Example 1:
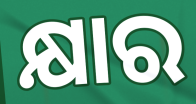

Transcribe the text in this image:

କ୍ଷାର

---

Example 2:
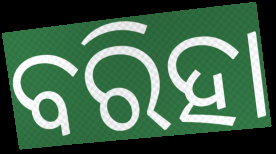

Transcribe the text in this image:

ବରିହା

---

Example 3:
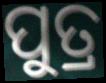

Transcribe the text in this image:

ପୁତ୍ର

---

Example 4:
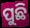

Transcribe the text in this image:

ପୁଛି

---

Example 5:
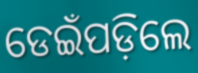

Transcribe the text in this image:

ଡେଇଁପଡ଼ିଲେ